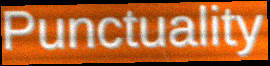
Punctuality